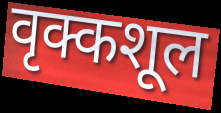
वृक्कशूल